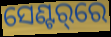
ସେଣ୍ଟର୍‌ରେ